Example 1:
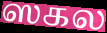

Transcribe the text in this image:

ஸகல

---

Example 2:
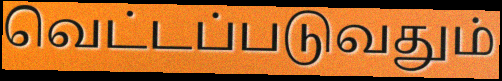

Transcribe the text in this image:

வெட்டப்படுவதும்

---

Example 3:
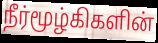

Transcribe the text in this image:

நீர்மூழ்கிகளின்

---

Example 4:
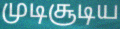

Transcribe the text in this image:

முடிசூடிய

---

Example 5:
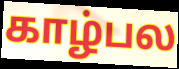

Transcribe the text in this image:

காழ்பல